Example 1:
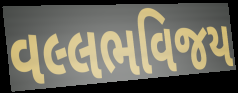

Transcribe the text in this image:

વલ્લભવિજય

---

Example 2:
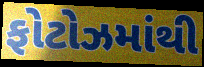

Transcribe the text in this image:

ફોટોઝમાંથી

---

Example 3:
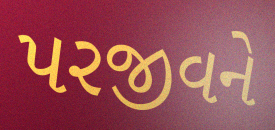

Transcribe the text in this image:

પરજીવને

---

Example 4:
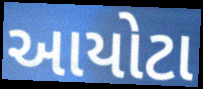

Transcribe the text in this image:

આયોટા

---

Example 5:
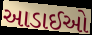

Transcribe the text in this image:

આડાઈઓ